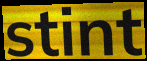
stint